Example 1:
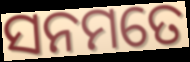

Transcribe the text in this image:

ସନମତେ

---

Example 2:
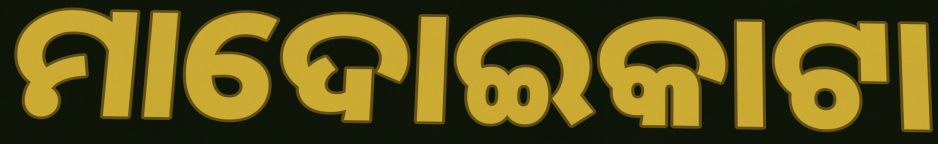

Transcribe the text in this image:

ମାଦୋଇକାଟା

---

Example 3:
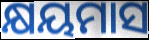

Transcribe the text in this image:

କ୍ଷୟମାସ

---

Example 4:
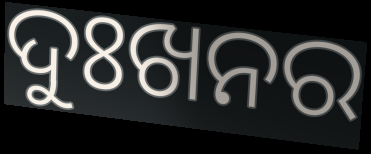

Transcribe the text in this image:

ଦୁଃଖନର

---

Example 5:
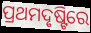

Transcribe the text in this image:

ପ୍ରଥମଦୃଷ୍ଟିରେ